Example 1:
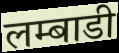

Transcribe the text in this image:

लम्बाडी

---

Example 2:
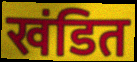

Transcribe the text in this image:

खंडित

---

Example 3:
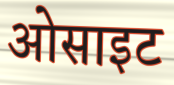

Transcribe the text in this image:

ओसाइट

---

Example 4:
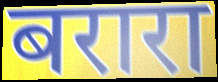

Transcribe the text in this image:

बरारा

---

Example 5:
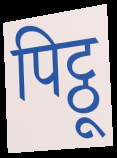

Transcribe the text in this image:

पिट्ठू